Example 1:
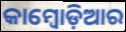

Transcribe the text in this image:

କାମ୍ବୋଡ଼ିଆର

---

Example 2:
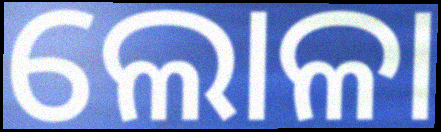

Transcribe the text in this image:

ଲୋଳା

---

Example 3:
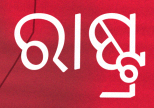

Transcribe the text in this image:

ରାଷ୍ଟ୍ର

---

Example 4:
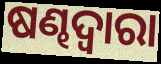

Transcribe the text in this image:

ଷଣ୍ଢଦ୍ୱାରା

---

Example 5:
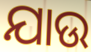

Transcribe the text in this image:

ଯାଉ